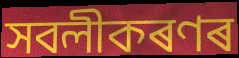
সবলীকৰণৰ